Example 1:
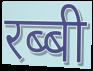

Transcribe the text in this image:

रब्बी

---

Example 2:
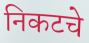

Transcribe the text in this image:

निकटचे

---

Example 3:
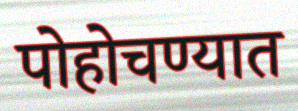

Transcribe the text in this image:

पोहोचण्यात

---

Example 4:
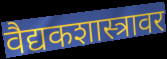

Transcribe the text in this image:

वैद्यकशास्त्रावर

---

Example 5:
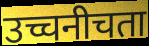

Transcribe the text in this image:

उच्चनीचता